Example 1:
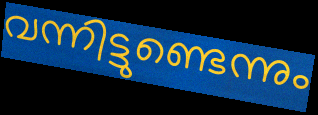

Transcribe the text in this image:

വന്നിട്ടുണ്ടെന്നും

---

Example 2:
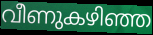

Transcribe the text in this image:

വീണുകഴിഞ്ഞ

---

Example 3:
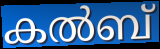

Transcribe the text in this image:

കൽബ്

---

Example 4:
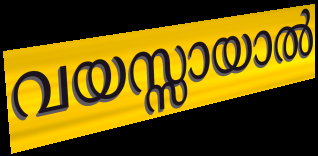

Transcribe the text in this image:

വയസ്സായാൽ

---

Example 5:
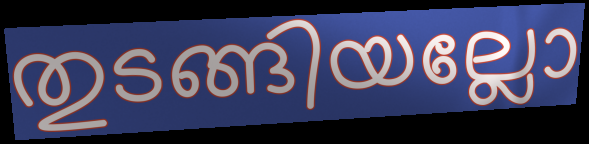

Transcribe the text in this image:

തുടങ്ങിയല്ലോ